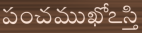
పంచముఖోఽస్తి